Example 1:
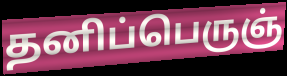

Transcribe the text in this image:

தனிப்பெருஞ்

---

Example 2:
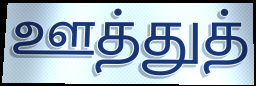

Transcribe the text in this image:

ஊத்துத்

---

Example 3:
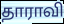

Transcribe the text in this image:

தாராவி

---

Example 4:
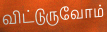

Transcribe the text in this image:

விட்டுருவோம்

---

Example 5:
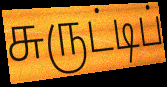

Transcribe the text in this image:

சுருட்டிப்